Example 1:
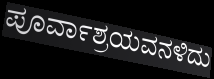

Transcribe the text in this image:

ಪೂರ್ವಾಶ್ರಯವನಳಿದು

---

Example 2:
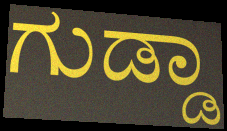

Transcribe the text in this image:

ಗುಡ್ಡಾ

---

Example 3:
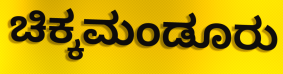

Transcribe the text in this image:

ಚಿಕ್ಕಮಂಡೂರು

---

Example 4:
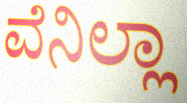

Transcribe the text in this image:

ವೆನಿಲ್ಲಾ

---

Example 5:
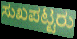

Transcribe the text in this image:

ಸುಖಪಟ್ಟರು